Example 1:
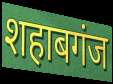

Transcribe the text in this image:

शहाबगंज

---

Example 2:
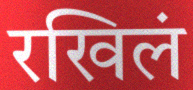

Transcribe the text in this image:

रखिलं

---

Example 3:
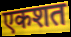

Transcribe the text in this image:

एकशत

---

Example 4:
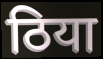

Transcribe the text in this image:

ठिया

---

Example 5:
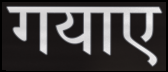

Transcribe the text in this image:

गयाए